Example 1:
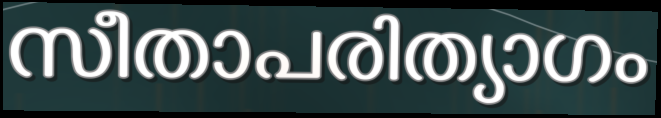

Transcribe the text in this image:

സീതാപരിത്യാഗം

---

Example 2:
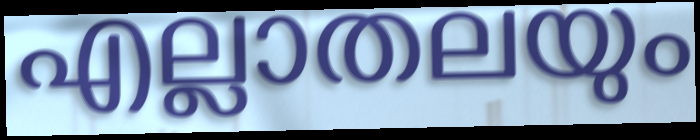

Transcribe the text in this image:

എല്ലാതലയും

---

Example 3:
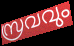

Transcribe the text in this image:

സ്രവവും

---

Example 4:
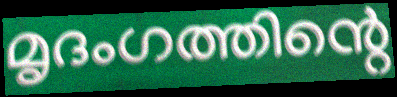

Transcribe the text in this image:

മൃദംഗത്തിന്റെ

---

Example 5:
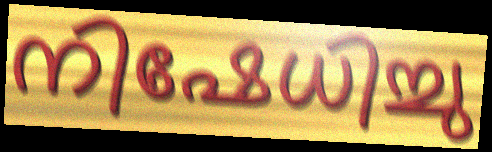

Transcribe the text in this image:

നിഷേധിച്ചു